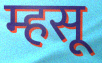
म्हसू